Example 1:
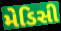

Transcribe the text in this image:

મેડિસી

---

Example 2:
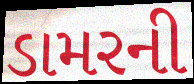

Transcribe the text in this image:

ડામરની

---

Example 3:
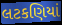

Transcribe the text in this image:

લટકણિયાં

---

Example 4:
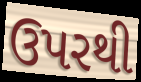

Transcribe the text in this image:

ઉપરથી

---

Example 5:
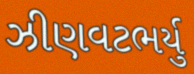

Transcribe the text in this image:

ઝીણવટભર્યુ